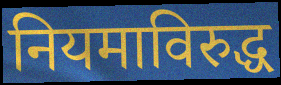
नियमाविरुद्ध